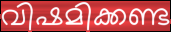
വിഷമിക്കണ്ട